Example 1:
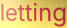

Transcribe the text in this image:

letting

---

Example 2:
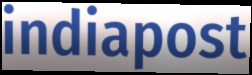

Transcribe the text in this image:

indiapost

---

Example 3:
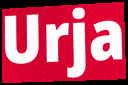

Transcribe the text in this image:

Urja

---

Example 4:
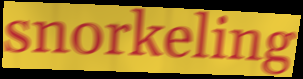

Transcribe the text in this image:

snorkeling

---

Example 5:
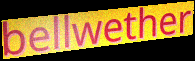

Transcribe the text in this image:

bellwether